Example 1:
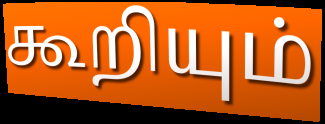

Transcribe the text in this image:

கூறியும்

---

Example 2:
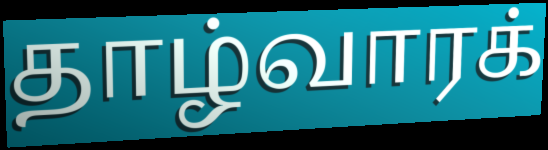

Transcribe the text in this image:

தாழ்வாரக்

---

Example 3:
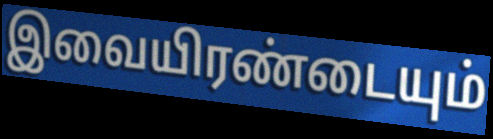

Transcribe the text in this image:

இவையிரண்டையும்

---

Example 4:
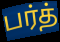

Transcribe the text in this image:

பர்த்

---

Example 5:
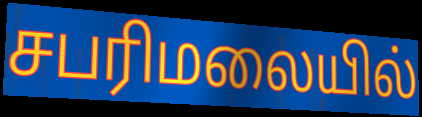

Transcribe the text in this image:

சபரிமலையில்